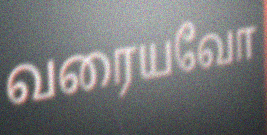
வரையவோ